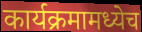
कार्यक्रमामध्येच